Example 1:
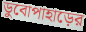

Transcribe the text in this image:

ডুবোপাহাড়ের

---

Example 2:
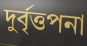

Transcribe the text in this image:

দুর্বৃত্তপনা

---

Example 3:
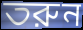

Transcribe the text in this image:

তরুন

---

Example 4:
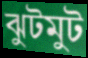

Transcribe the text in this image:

ঝুটমুট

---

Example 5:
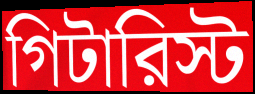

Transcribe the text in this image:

গিটারিস্ট